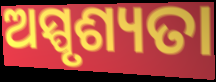
ଅସ୍ପୃଶ୍ୟତା